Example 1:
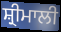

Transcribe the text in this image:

ਸ਼੍ਰੀਮਾਲੀ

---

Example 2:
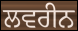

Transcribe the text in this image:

ਲਵਰੀਨ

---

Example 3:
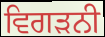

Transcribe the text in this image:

ਵਿਗੜਨੀ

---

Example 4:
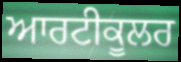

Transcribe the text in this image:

ਆਰਟੀਕੂਲਰ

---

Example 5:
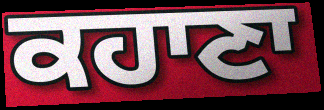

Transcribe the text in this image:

ਕਹਾਣਾ